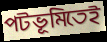
পটভূমিতেই